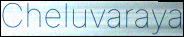
Cheluvaraya